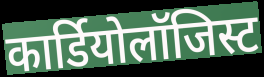
कार्डियोलॉजिस्ट